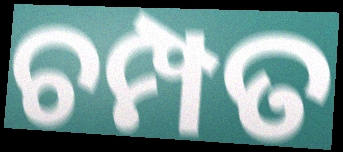
ଚମ୍ପତ